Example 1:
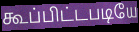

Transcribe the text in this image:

கூப்பிட்டபடியே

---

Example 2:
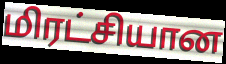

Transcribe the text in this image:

மிரட்சியான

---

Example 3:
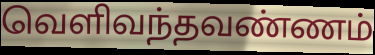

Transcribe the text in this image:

வெளிவந்தவண்ணம்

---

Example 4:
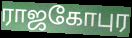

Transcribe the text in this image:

ராஜகோபுர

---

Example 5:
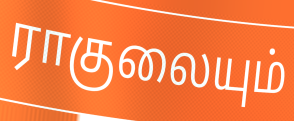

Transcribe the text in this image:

ராகுலையும்